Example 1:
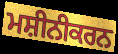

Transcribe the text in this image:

ਮਸ਼ੀਨੀਕਰਨ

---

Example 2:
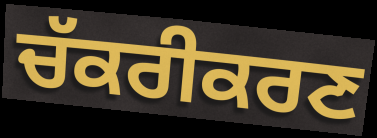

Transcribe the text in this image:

ਚੱਕਰੀਕਰਣ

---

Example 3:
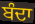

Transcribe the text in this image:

ਬੰਦਾ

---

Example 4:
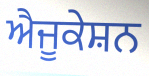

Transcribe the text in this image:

ਐਜੂਕੇਸ਼ਨ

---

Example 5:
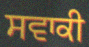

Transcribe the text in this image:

ਸਵਾਕੀ